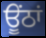
ਊਂਠਾਂ